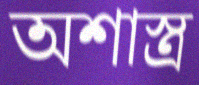
অশাস্ত্র